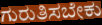
ಗುರುತಿಸಬೇಕು